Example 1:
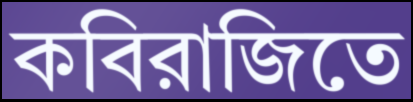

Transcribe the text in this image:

কবিরাজিতে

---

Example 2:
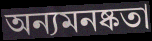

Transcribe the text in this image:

অন্যমনষ্কতা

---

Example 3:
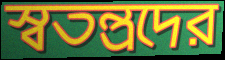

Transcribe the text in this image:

স্বতন্ত্রদের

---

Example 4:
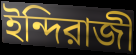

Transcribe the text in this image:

ইন্দিরাজী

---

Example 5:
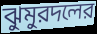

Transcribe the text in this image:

ঝুমুরদলের